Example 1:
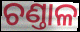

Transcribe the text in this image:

ଚଣ୍ତାଳ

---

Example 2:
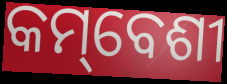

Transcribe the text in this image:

କମ୍‌ବେଶୀ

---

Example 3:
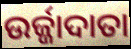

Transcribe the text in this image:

ଉର୍ଜ୍ଜାଦାତା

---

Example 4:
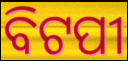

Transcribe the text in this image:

ବିଟପୀ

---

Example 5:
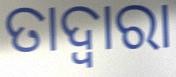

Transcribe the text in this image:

ତାଦ୍ଵାରା